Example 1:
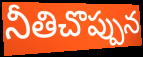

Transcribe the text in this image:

నీతిచొప్పున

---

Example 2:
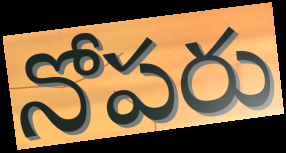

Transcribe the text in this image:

నోపరు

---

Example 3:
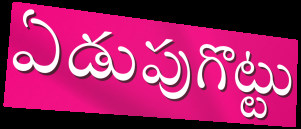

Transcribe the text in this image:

ఏడుపుగొట్టు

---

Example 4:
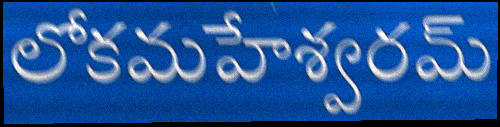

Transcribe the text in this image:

లోకమహేశ్వరమ్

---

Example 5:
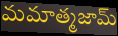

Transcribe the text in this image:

మమాత్మజామ్